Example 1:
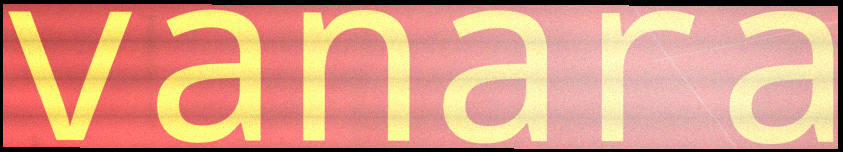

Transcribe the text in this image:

vanara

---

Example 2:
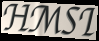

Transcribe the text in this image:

HMSI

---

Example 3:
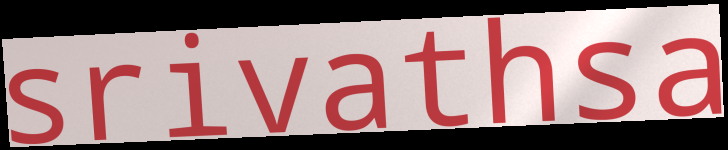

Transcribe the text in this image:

srivathsa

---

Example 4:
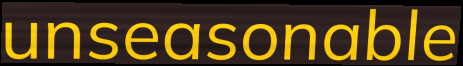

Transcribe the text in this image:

unseasonable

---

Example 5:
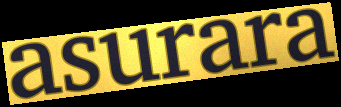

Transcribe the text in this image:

asurara